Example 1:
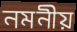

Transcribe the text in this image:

নমনীয়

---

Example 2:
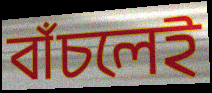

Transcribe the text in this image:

বাঁচলেই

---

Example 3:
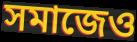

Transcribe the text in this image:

সমাজেও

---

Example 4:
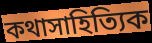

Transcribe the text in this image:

কথাসাহিত্যিক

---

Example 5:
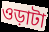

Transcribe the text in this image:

ওড়াটা